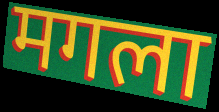
मगला